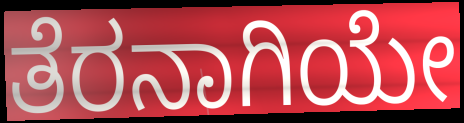
ತೆರನಾಗಿಯೇ